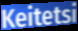
Keitetsi